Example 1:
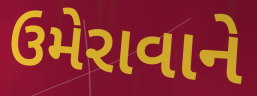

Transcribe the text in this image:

ઉમેરાવાને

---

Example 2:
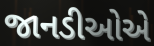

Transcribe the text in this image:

જાનડીઓએ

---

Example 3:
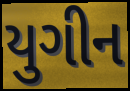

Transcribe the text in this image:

યુગીન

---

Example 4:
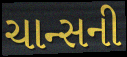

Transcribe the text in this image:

ચાન્સની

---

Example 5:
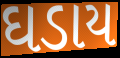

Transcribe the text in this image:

ઘડાય